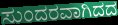
ಸುಂದರವಾಗಿದದ